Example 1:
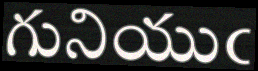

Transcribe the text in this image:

గునియుఁ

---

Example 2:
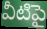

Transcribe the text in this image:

వీటిపై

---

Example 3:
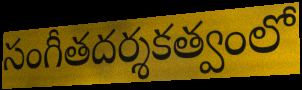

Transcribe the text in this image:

సంగీతదర్శకత్వంలో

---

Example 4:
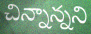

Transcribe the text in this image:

చిన్నాన్నని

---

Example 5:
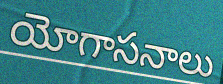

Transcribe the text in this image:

యోగాసనాలు